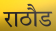
राठौड